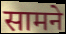
सामने